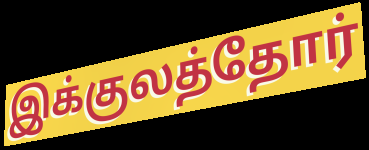
இக்குலத்தோர்